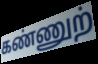
கண்ணுற்